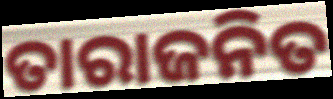
ତାରାଜନିତ